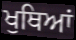
ਖੁਥਿਆਂ